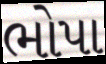
ભોપા